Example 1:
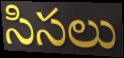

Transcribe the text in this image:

సిసలు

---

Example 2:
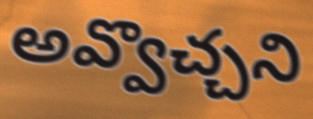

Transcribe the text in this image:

అవ్వొచ్చని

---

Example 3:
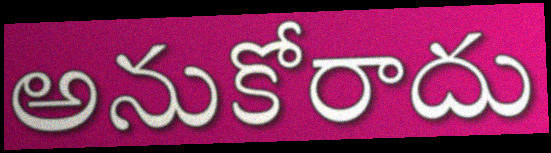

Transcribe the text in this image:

అనుకోరాదు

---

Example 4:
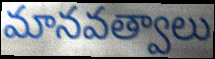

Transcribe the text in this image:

మానవత్వాలు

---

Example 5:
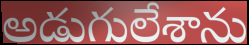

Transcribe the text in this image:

అడుగులేశాను